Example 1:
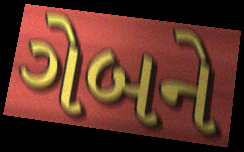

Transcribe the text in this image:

ગેબને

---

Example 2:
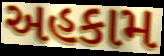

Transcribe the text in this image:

અહકામ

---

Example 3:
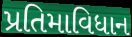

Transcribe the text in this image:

પ્રતિમાવિધાન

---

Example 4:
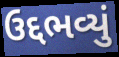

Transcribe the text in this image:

ઉદ્દભવ્યું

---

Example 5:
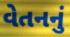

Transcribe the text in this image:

વેતનનું